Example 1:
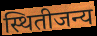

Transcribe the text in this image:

स्थितीजन्य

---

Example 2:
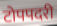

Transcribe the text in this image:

टोपपदरी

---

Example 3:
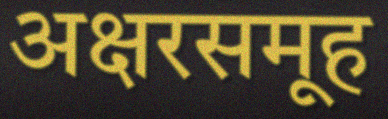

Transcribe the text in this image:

अक्षरसमूह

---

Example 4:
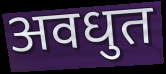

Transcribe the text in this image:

अवधुत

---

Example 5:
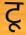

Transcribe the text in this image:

टू